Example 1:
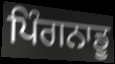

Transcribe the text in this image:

ਪਿੰਗਨਾਡੂ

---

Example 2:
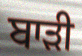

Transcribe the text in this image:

ਬਾੜੀ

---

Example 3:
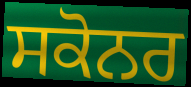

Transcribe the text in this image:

ਸਕੋਨਰ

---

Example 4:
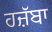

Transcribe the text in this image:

ਹਜ਼ੱਬਾ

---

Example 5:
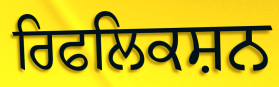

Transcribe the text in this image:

ਰਿਫਲਿਕਸ਼ਨ